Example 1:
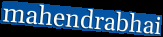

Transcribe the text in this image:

mahendrabhai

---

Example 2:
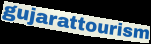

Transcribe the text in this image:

gujarattourism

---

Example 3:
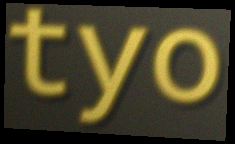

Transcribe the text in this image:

tyo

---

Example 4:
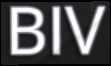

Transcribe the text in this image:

BIV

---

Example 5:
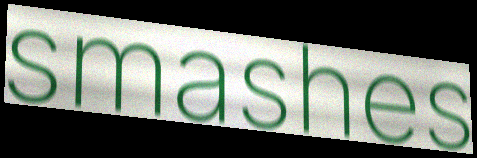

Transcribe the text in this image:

smashes